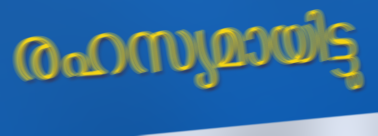
രഹസ്യമായിട്ടു